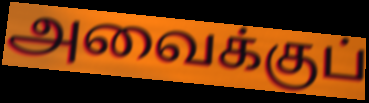
அவைக்குப்